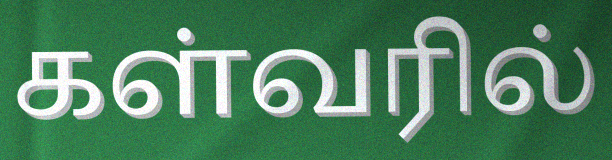
கள்வரில்